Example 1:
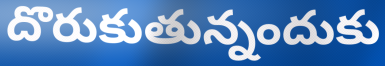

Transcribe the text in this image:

దొరుకుతున్నందుకు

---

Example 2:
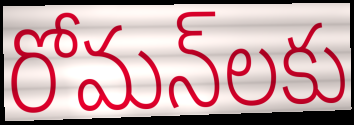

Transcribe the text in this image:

రోమన్‌లకు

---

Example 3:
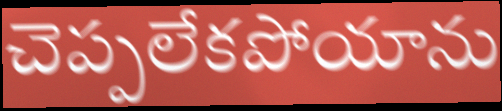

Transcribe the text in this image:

చెప్పలేకపోయాను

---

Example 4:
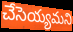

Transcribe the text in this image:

చేసెయ్యమని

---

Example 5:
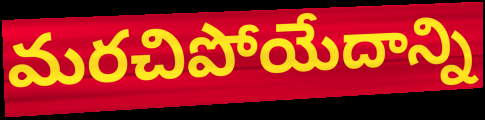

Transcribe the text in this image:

మరచిపోయేదాన్ని